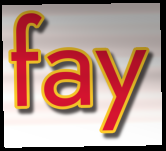
fay